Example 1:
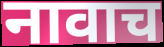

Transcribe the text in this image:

नावाच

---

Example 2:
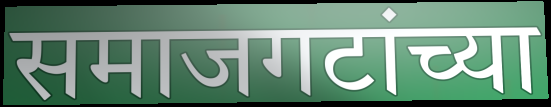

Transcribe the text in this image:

समाजगटांच्या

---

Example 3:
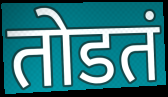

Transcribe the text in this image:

तोडतं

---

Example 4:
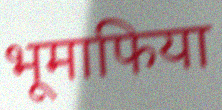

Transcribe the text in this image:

भूमाफिया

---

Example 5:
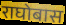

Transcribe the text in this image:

राघोबास